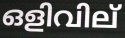
ഒളിവില്